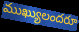
ముఖ్యులందరూ